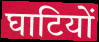
घाटियों